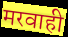
मरवाही